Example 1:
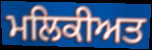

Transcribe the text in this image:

ਮਲਿਕੀਅਤ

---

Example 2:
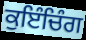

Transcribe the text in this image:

ਕੁਇੰਚਿੰਗ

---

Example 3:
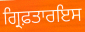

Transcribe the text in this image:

ਗ੍ਰਿਫ਼ਤਾਰਇਸ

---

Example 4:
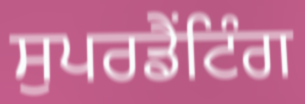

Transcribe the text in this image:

ਸੁਪਰਡੈਂਟਿੰਗ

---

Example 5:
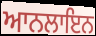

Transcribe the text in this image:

ਆਨਲਾਇਨ